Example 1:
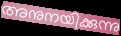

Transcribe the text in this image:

അനുനയിക്കുന്നു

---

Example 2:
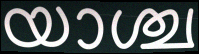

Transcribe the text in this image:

യാശ്ച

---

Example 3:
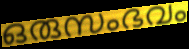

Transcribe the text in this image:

ഒരുസംഭവം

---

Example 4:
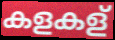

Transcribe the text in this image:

കളകള്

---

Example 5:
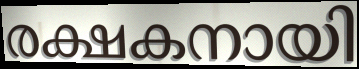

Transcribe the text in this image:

രക്ഷകനായി